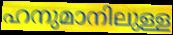
ഹനുമാനിലുള്ള